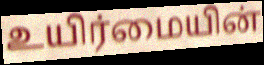
உயிர்மையின்